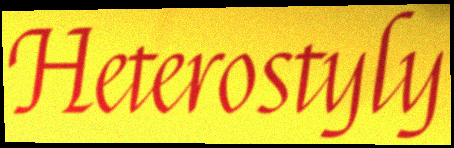
Heterostyly